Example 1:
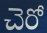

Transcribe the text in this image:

చెరో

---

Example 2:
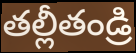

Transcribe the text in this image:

తల్లీతండ్రి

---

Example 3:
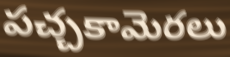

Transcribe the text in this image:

పచ్చకామెరలు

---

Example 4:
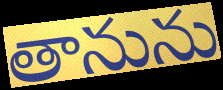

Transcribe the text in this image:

తానును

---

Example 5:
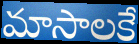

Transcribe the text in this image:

మాసాలకే